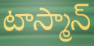
టాస్మాన్